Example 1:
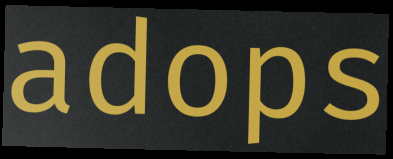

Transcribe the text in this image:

adops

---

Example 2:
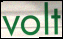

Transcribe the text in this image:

volt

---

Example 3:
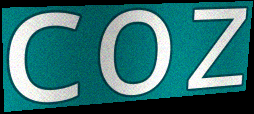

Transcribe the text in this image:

coz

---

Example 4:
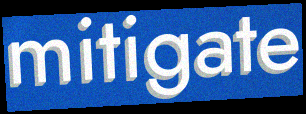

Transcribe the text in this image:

mitigate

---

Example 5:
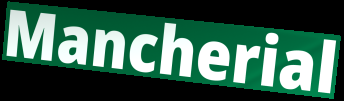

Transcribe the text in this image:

Mancherial